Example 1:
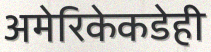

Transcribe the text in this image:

अमेरिकेकडेही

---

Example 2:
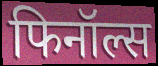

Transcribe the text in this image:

फिनॉल्स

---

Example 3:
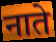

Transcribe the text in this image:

नाते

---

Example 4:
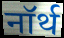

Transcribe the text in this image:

नॉर्थ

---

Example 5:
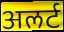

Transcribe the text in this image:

अलर्ट